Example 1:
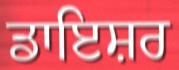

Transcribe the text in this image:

ਡਾਇਸ਼ਰ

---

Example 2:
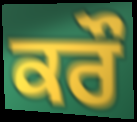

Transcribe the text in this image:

ਕਰੌ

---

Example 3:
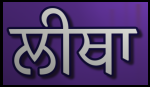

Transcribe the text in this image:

ਲੀਥਾ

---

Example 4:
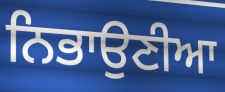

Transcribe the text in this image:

ਨਿਭਾਉਣੀਆ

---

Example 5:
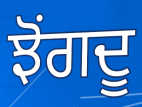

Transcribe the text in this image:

ਝੋਂਗਦੂ